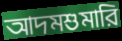
আদমশুমারি